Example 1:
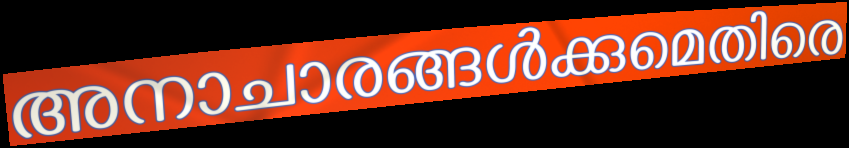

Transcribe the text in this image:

അനാചാരങ്ങൾക്കുമെതിരെ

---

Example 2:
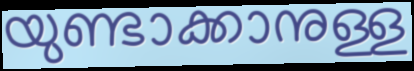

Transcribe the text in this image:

യുണ്ടാക്കാനുള്ള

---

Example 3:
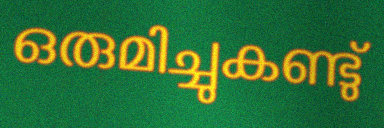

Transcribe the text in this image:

ഒരുമിച്ചുകണ്ടു്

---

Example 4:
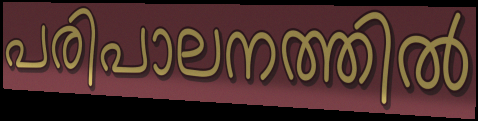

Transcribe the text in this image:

പരിപാലനത്തിൽ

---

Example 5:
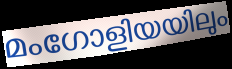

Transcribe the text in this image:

മംഗോളിയയിലും